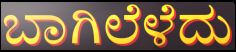
ಬಾಗಿಲೆಳೆದು